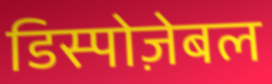
डिस्पोज़ेबल